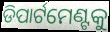
ଡିପାର୍ଟମେଣ୍ଟକୁ